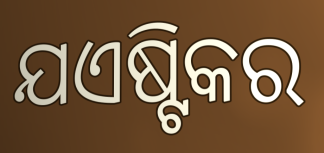
ଯଏଷ୍ଟିକର